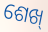
ଶେଖ୍